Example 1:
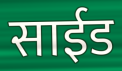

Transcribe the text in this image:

साईड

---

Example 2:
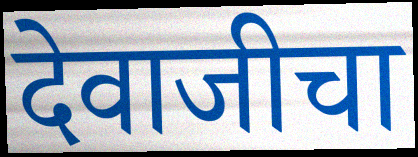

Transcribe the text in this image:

देवाजीचा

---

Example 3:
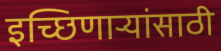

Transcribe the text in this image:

इच्छिणाऱ्यांसाठी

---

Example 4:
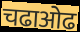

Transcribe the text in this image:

चढाओढ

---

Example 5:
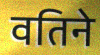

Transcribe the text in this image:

वतिने